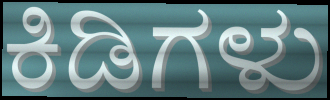
ಕಿಡಿಗಳು